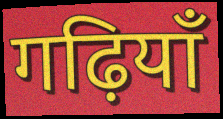
गढ़ियाँ